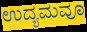
ಉದ್ಯಮವೂ